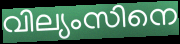
വില്യംസിനെ